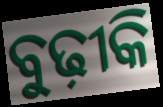
ବୁଢ଼ୀକି